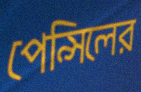
পেন্সিলের